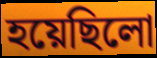
হয়েছিলো